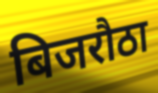
बिजरौठा